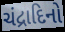
ચંદ્રાદિનો